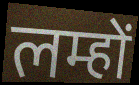
लम्हों